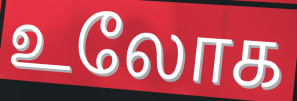
உலோக